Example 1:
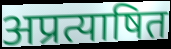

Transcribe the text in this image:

अप्रत्याषित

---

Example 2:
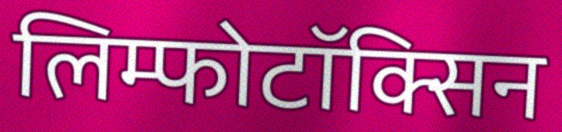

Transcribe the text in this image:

लिम्फोटॉक्सिन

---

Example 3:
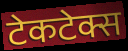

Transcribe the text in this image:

टेकटेक्स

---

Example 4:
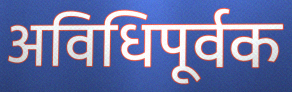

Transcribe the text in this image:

अविधिपूर्वक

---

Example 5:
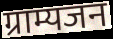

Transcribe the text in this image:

ग्राम्यजन